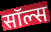
सॉल्स